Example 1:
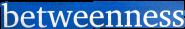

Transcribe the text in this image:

betweenness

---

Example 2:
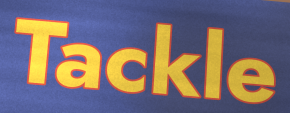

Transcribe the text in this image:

Tackle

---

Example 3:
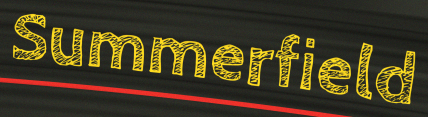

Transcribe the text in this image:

Summerfield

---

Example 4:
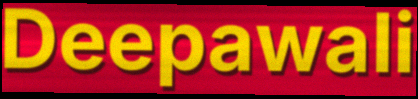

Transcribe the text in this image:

Deepawali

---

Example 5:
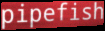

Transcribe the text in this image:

pipefish